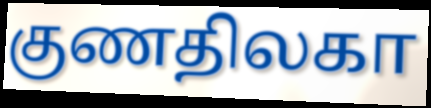
குணதிலகா